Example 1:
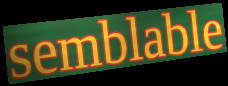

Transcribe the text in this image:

semblable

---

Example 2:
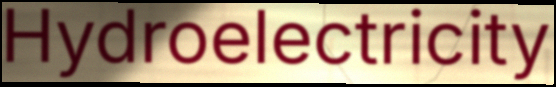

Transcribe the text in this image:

Hydroelectricity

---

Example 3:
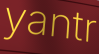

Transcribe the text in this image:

yantr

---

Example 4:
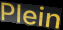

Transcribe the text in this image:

Plein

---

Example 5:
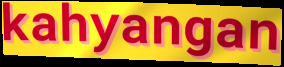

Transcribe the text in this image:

kahyangan